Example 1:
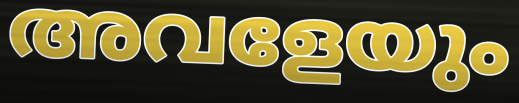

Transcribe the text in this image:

അവളേയും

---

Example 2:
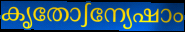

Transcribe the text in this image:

കൃതോഽന്യേഷാം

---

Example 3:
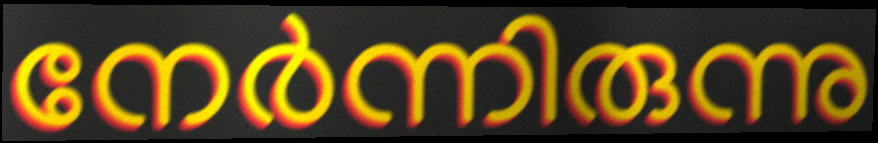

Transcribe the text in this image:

നേർന്നിരുന്നു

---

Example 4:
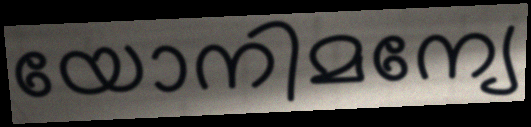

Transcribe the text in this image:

യോനിമന്യേ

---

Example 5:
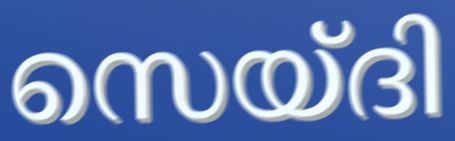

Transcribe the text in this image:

സെയ്ദി